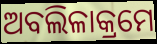
ଅବଲିଳାକ୍ରମେ